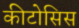
कीटोसिस